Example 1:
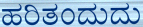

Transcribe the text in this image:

ಹರಿತಂದುದು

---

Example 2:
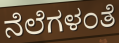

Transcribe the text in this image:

ನೆಲೆಗಳಂತೆ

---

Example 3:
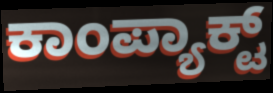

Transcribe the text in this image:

ಕಾಂಪ್ಯಾಕ್ಟ್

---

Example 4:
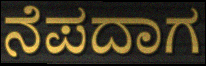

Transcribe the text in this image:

ನೆಪದಾಗ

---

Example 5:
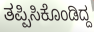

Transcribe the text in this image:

ತಪ್ಪಿಸಿಕೊಂಡಿದ್ದ